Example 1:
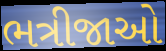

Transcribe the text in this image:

ભત્રીજાઓ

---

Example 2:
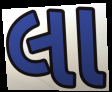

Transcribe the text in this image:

લા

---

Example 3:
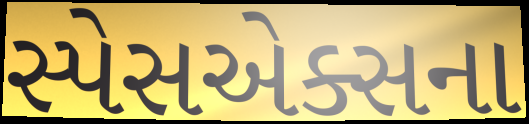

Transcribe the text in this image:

સ્પેસએક્સના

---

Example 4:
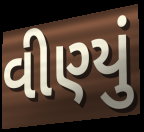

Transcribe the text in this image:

વીણ્યું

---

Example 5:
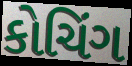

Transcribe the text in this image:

કોચિંગ